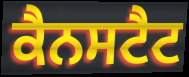
ਕੈਨਸਟੈਟ